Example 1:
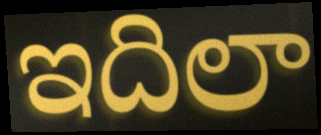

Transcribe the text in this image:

ఇదిలా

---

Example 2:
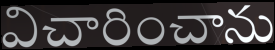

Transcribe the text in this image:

విచారించాను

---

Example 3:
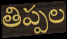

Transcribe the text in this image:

తిప్పల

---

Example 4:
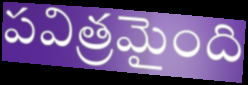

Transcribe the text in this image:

పవిత్రమైంది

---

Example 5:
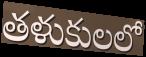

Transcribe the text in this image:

తళుకులలో